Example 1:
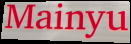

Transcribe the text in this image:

Mainyu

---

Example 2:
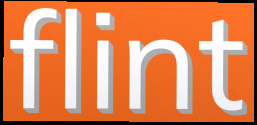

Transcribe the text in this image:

flint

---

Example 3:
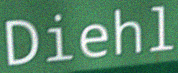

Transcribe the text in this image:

Diehl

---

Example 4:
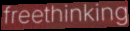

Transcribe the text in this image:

freethinking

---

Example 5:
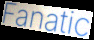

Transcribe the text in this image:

Fanatic